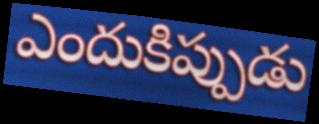
ఎందుకిప్పుడు